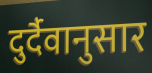
दुर्दैवानुसार